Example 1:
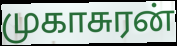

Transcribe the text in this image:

முகாசுரன்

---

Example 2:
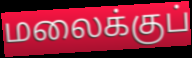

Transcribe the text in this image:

மலைக்குப்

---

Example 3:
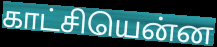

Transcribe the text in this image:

காட்சியென்ன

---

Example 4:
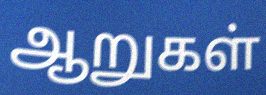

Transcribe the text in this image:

ஆறுகள்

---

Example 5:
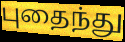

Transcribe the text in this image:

புதைந்து